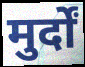
मुर्दों